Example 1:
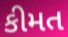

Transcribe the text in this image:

કીમત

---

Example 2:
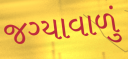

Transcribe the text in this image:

જગ્યાવાળું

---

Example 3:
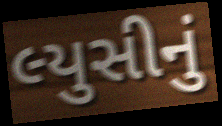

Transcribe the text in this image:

લ્યુસીનું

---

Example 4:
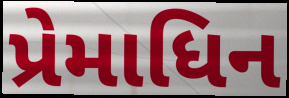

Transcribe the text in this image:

પ્રેમાધિન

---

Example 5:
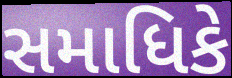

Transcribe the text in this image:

સમાધિકે